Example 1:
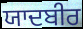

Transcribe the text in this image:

ਯਾਦਬੀਰ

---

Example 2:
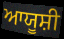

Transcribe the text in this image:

ਆਯੂਸ਼ੀ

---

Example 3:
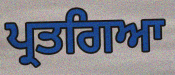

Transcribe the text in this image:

ਪ੍ਰਤਗਿਆ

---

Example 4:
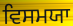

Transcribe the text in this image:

ਵਿਸਮਯਾ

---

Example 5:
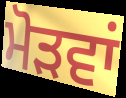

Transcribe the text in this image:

ਮੋੜਵਾਂ